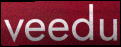
veedu